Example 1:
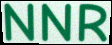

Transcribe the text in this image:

NNR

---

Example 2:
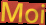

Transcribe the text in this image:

Moi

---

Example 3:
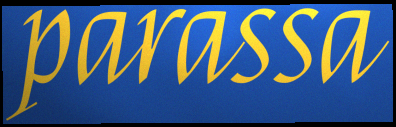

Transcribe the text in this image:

parassa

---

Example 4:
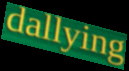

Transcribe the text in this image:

dallying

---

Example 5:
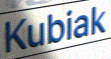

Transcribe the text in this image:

Kubiak